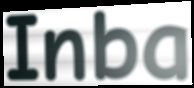
Inba